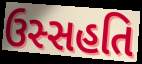
ઉસ્સહતિ